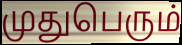
முதுபெரும்